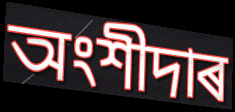
অংশীদাৰ